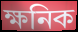
ক্ষনিক